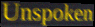
Unspoken